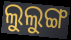
ଲୁଲୁଙ୍ଗ